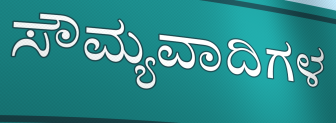
ಸೌಮ್ಯವಾದಿಗಳ